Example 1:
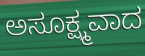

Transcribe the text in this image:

ಅಸೂಕ್ಷ್ಮವಾದ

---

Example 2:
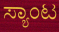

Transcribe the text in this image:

ಸ್ಯಾಂಟ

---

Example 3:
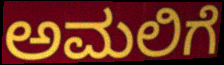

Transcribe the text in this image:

ಅಮಲಿಗೆ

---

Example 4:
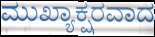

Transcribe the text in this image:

ಮುಖ್ಯಾಕ್ಷರವಾದ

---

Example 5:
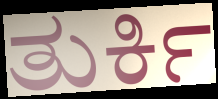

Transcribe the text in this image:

ತುರ್ಕಿ